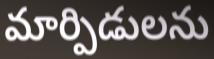
మార్పిడులను